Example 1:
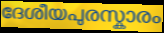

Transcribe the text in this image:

ദേശീയപുരസ്കാരം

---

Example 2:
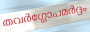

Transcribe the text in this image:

തവർഗ്ഗോപമർദ്ദം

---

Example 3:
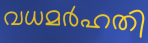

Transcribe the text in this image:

വധമർഹതി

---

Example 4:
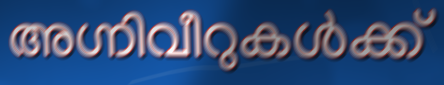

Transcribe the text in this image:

അഗ്നിവീറുകൾക്ക്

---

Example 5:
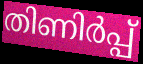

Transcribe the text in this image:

തിണിർപ്പ്